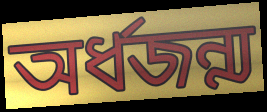
অর্ধজন্ম